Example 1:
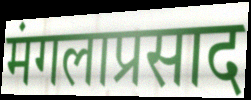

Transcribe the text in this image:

मंगलाप्रसाद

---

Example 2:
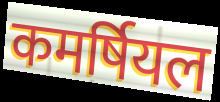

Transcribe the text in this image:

कमर्षियल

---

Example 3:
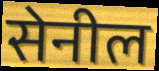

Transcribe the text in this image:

सेनील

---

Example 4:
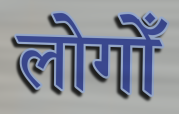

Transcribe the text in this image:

लोगोँ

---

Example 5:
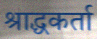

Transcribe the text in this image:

श्राद्धकर्ता